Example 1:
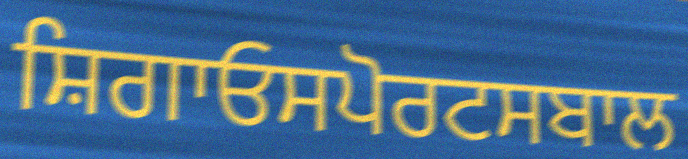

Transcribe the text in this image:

ਸ਼ਿਗਾਓਸਪੋਰਟਸਬਾਲ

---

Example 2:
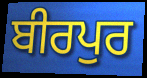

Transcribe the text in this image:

ਬੀਰਪੁਰ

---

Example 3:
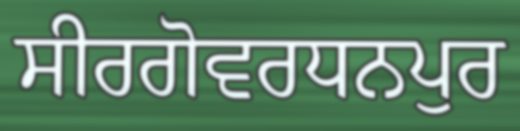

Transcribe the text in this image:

ਸੀਰਗੋਵਰਧਨਪੁਰ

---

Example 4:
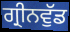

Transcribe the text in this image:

ਗ੍ਰੀਨਵੁੱਡ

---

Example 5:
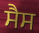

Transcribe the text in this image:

ਸੈਸ